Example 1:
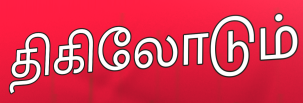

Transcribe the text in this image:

திகிலோடும்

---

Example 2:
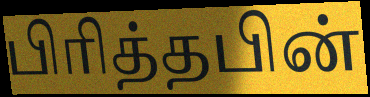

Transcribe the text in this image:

பிரித்தபின்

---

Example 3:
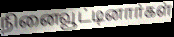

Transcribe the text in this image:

நினைவூட்டினார்கள்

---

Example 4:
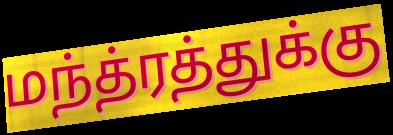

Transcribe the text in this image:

மந்த்ரத்துக்கு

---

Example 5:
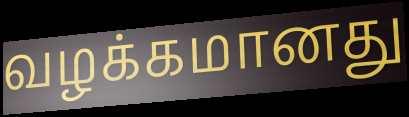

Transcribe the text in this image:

வழக்கமானது